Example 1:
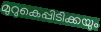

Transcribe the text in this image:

മുറുകെപ്പിടിക്കയും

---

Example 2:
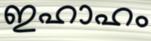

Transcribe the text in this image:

ഇഹാഹം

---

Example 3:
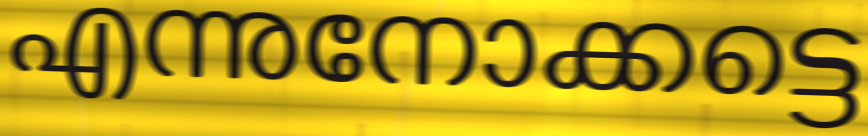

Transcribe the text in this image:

എന്നുനോക്കട്ടെ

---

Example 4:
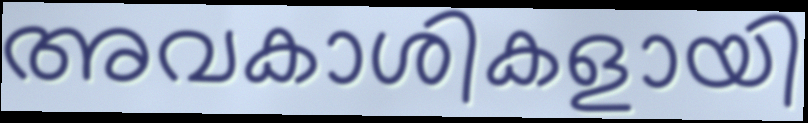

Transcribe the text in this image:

അവകാശികളായി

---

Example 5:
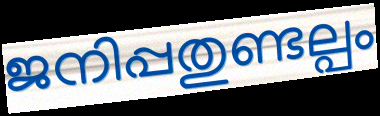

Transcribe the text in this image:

ജനിപ്പതുണ്ടല്പം